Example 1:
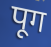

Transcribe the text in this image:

पूग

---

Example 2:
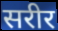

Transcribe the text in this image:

सरीर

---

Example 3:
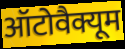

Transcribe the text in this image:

ऑटोवैक्यूम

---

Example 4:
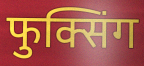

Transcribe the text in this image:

फुक्सिंग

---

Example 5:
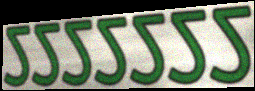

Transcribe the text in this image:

ऽऽऽऽऽऽऽ